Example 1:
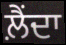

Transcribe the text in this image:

ਲ਼ੈਂਦਾ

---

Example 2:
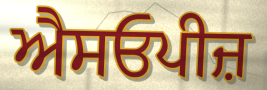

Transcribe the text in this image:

ਐਸਓਪੀਜ਼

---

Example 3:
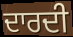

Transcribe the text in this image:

ਦਾਰਦੀ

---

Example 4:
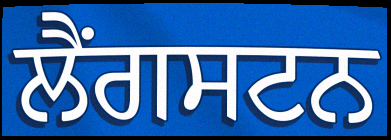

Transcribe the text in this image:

ਲੈਂਗਸਟਨ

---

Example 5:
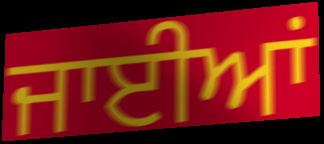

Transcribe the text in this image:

ਜਾਈਆਂ